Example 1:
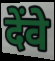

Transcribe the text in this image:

देंवे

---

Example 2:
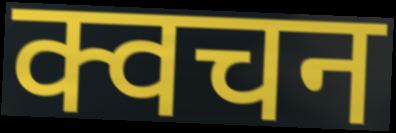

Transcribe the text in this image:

क्वचन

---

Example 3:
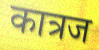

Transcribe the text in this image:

कात्रज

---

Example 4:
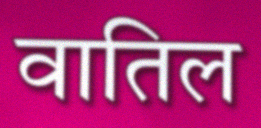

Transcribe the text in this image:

वातिल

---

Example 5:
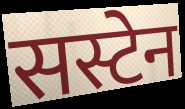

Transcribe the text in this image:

सस्टेन